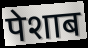
पेशाब